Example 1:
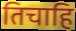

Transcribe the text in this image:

तिचाहि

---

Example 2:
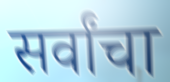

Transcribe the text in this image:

सर्वांचा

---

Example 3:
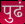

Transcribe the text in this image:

पुढं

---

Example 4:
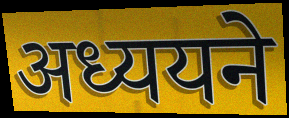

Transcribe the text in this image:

अध्ययने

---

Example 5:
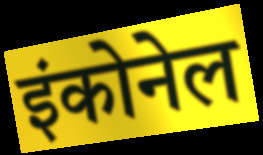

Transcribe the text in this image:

इंकोनेल